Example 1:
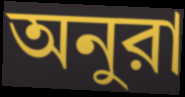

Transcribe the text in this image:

অনুরা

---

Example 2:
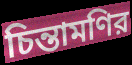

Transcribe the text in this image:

চিন্তামণির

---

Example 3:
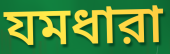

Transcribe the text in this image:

যমধারা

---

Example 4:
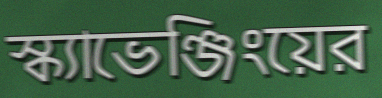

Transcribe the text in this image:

স্ক্যাভেঞ্জিংয়ের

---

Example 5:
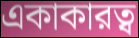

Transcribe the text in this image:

একাকারত্ব